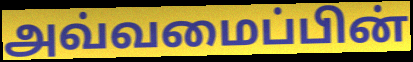
அவ்வமைப்பின்